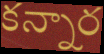
కన్నార